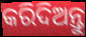
କରିଦିଅନ୍ତୁ